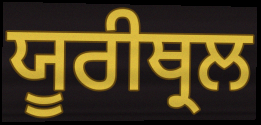
ਯੂਰੀਥ੍ਰਲ